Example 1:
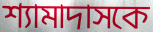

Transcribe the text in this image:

শ্যামাদাসকে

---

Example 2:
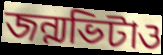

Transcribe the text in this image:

জন্মভিটাও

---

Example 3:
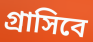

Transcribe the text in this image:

গ্রাসিবে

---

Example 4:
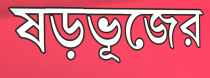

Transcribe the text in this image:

ষড়ভূজের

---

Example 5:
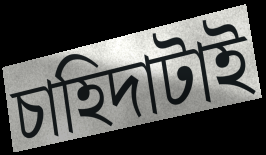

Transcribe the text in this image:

চাহিদাটাই